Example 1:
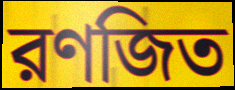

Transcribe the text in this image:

রণজিত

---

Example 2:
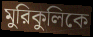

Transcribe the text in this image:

মুরিকুলিকে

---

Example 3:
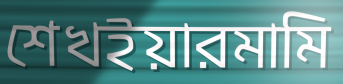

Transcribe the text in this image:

শেখইয়ারমামি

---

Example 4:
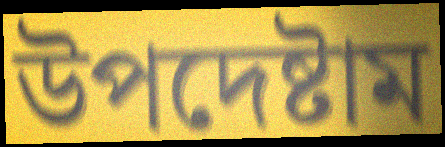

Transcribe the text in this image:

উপদেষ্টাম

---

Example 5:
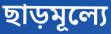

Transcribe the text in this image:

ছাড়মূল্যে